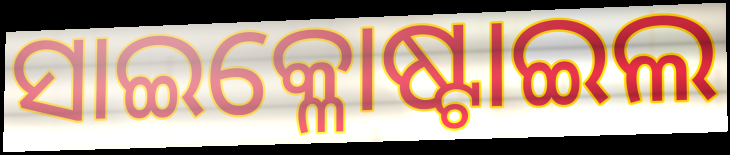
ସାଇକ୍ଳୋଷ୍ଟାଇଲ